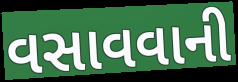
વસાવવાની